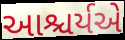
આશ્ચર્યએ